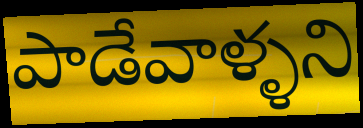
పాడేవాళ్ళని